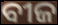
ବୀଜ